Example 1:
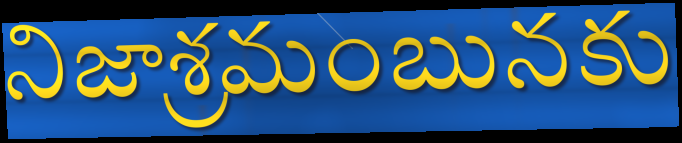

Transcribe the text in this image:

నిజాశ్రమంబునకు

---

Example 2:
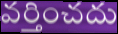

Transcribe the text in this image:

వర్తించదు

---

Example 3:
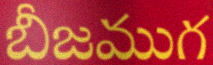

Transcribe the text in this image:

బీజముగ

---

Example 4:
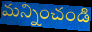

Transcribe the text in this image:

మన్నించండి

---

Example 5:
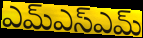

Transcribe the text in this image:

ఎమ్ఎస్ఎమ్